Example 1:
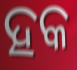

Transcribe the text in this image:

ହକ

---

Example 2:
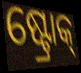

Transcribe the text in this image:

ଷ୍ଟ୍ରୋକ୍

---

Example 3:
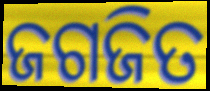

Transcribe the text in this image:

ଜଗଜିତ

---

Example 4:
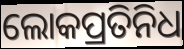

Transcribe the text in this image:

ଲୋକପ୍ରତିନିଧ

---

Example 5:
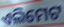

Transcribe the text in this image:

ଏଲିମେଟ